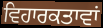
ਵਿਹਾਰਕਤਾਵਾਂ